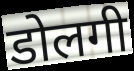
डोलगी